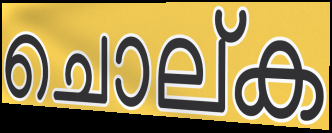
ചൊല്ക